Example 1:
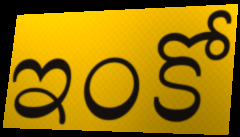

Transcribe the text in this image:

ఇంకో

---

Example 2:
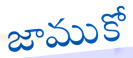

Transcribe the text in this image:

జాముకో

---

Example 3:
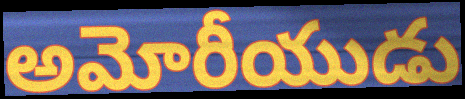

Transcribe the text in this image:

అమోరీయుడు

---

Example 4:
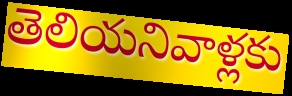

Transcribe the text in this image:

తెలియనివాళ్లకు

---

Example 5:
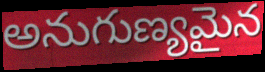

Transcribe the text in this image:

అనుగుణ్యమైన